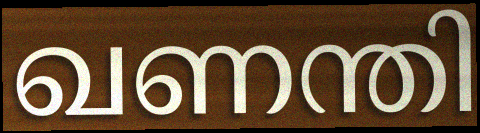
ഖണന്തി